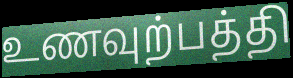
உணவுற்பத்தி